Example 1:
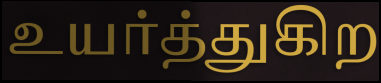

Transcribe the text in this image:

உயர்த்துகிற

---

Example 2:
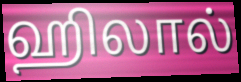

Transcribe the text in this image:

ஹிலால்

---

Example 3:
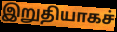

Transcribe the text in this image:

இறுதியாகச்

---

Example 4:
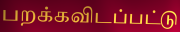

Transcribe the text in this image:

பறக்கவிடப்பட்டு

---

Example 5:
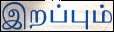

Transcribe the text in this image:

இறப்பும்